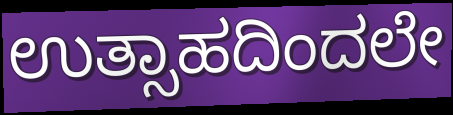
ಉತ್ಸಾಹದಿಂದಲೇ